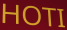
HOTI